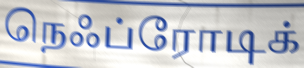
நெஃப்ரோடிக்